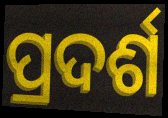
ପ୍ରଦର୍ଶ